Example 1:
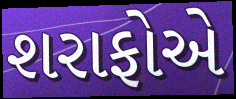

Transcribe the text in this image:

શરાફોએ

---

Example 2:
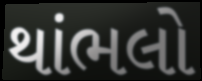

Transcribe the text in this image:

થાંભલો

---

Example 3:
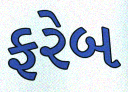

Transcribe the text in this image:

ફરેબ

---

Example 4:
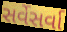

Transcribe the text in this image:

સર્વેસર્વા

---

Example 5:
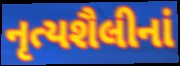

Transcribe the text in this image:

નૃત્યશૈલીનાં